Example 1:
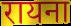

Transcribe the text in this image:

रायना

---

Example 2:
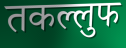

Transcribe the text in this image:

तकल्लुफ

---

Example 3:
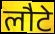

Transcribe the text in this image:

लौटे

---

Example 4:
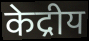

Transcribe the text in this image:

केद्रीय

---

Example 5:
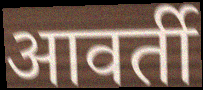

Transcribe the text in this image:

आवर्ती